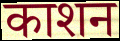
काशन